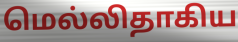
மெல்லிதாகிய